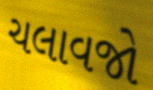
ચલાવજો